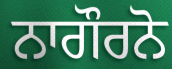
ਨਾਗੌਰਨੋ